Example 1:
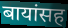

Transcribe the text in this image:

बायांसह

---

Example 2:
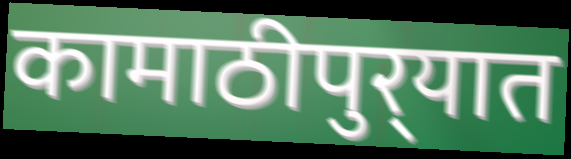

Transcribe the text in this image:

कामाठीपुर्‍यात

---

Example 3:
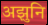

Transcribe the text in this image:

अझुनि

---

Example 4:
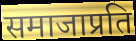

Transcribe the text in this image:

समाजाप्रति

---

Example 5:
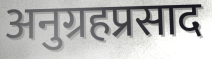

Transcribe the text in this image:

अनुग्रहप्रसाद